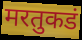
मरतुकडं